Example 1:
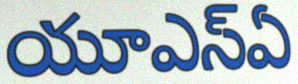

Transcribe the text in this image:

యూఎస్ఏ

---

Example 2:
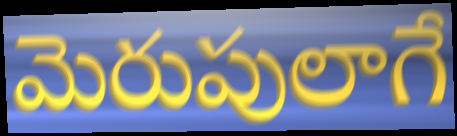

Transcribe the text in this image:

మెరుపులాగే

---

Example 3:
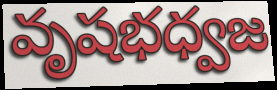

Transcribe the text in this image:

వృషభధ్వజ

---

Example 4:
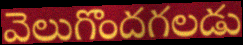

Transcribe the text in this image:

వెలుగొందగలడు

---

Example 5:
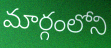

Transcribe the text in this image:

మార్గంలోని